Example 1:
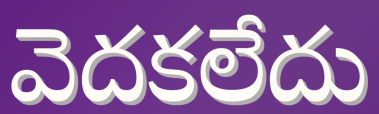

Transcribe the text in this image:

వెదకలేదు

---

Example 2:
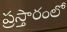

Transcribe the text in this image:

ప్రస్తారంలో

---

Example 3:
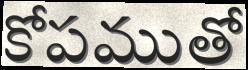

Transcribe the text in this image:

కోపముతో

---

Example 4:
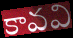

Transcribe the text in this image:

కావవి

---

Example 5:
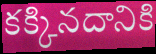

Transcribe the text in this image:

కక్కినదానికి